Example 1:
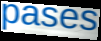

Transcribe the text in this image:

pases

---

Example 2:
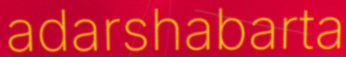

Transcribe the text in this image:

adarshabarta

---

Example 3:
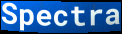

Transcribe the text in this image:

Spectra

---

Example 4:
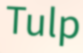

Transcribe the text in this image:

Tulp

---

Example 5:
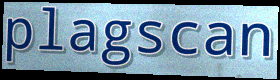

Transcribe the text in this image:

plagscan